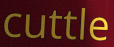
cuttle